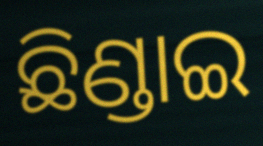
ଛିଣ୍ଡାଇ